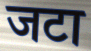
जटा